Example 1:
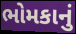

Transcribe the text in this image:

ભોમકાનું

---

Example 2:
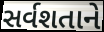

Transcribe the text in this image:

સર્વશતાને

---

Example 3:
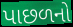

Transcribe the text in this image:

પાછળનો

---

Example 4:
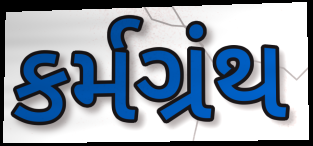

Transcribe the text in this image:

કર્મગ્રંથ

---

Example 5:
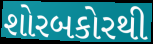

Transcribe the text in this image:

શોરબકોરથી